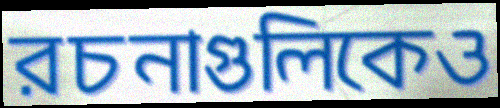
রচনাগুলিকেও